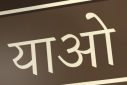
याओ